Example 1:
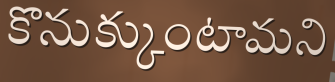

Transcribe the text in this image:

కొనుక్కుంటామని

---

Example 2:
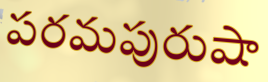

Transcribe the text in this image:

పరమపురుషా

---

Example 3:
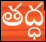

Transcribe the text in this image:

తద్ధ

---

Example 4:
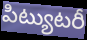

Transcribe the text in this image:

పిట్యుటరీ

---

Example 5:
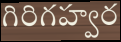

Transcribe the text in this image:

గిరిగహ్వర